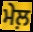
ਮੇਲ਼